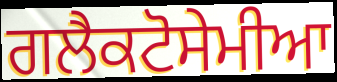
ਗਲੈਕਟੋਸੇਮੀਆ